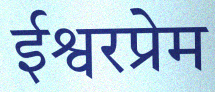
ईश्वरप्रेम